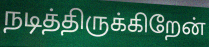
நடித்திருக்கிறேன்